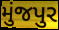
મુંજપુર